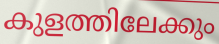
കുളത്തിലേക്കും